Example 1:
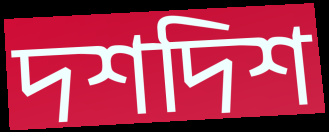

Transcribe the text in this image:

দশদিশ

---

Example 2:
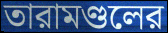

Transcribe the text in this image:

তারামণ্ডলের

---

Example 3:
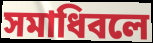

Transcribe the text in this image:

সমাধিবলে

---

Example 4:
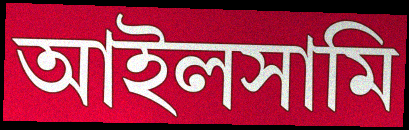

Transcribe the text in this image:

আইলসামি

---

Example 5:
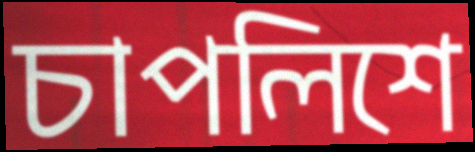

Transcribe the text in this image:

চাপলিশে